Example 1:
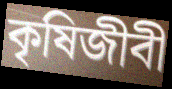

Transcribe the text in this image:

কৃষিজীবী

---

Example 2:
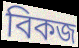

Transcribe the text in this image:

বিকজ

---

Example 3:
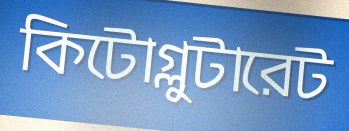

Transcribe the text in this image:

কিটোগ্লুটারেট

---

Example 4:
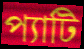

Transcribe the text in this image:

প্যাটি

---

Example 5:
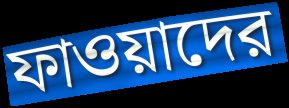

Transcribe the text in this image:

ফাওয়াদের